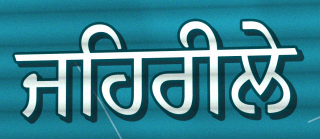
ਜਹਿਰੀਲੇ